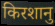
किरशानु